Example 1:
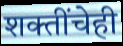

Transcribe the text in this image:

शक्तींचेही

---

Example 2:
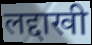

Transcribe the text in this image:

लद्दाखी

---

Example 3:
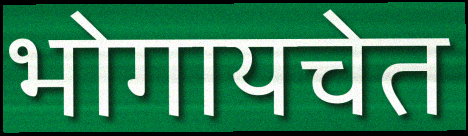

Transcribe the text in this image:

भोगायचेत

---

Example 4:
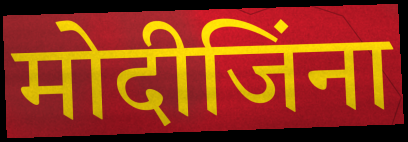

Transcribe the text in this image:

मोदीजिंना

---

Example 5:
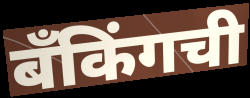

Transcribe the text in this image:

बँकिंगची